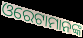
ଓରେଟାମାନଙ୍କ